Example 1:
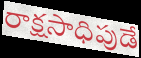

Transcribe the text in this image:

రాక్షసాధిపుడే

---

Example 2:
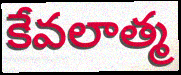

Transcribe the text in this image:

కేవలాత్మ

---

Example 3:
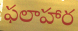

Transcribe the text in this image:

ఫలాహార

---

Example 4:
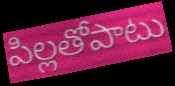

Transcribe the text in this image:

పిల్లతోపాటు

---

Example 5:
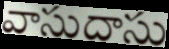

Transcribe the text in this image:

వాసుదాసు